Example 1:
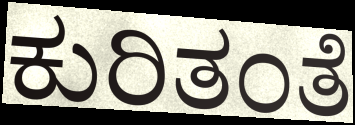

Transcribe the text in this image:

ಕುರಿತಂತೆ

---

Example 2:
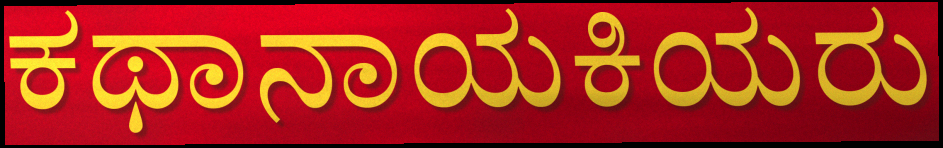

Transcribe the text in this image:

ಕಥಾನಾಯಕಿಯರು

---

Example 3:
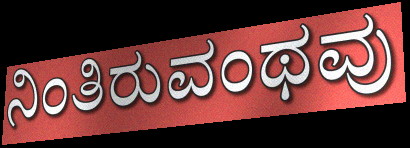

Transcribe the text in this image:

ನಿಂತಿರುವಂಥವು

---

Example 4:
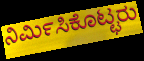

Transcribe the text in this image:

ನಿರ್ಮಿಸಿಕೊಟ್ಟರು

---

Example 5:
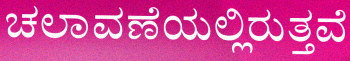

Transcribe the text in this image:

ಚಲಾವಣೆಯಲ್ಲಿರುತ್ತವೆ